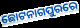
ଛୋଟନାଗପୁରରେ